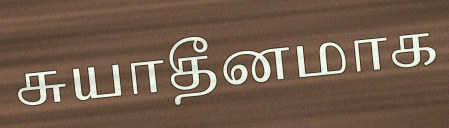
சுயாதீனமாக